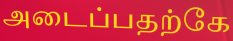
அடைப்பதற்கே